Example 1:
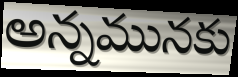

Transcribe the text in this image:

అన్నమునకు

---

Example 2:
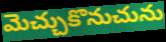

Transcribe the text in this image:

మెచ్చుకొనుచును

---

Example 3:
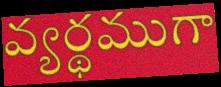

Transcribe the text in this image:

వ్యర్థముగా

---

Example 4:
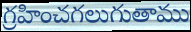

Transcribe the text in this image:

గ్రహించగలుగుతాము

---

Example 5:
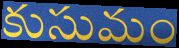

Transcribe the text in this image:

కుసుమం